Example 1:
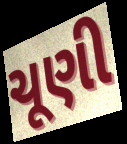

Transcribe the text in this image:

ચૂણી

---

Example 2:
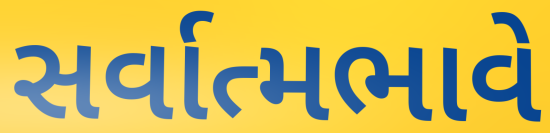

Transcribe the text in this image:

સર્વાત્મભાવે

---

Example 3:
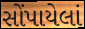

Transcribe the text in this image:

સોંપાયેલાં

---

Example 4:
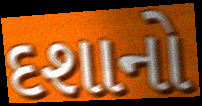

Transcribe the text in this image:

દશાનો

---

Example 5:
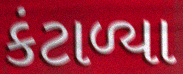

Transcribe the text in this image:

કંટાળ્યા